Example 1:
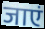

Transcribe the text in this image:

जाएं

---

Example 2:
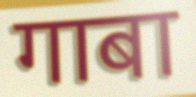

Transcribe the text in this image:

गाबा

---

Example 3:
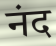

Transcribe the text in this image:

नंद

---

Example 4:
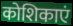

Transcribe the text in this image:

कोशिकाएं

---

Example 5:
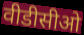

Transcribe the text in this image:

वीडीसीओ